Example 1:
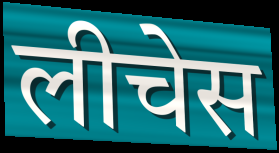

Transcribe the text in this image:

लीचेस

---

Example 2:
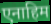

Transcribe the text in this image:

एनाहिम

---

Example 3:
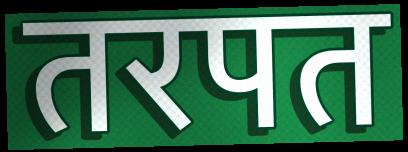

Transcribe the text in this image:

तरपत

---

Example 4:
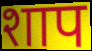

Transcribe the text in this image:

शाप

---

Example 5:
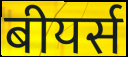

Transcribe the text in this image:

बीयर्स